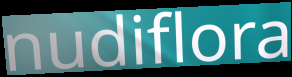
nudiflora